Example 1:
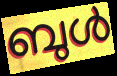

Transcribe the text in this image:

ബുൾ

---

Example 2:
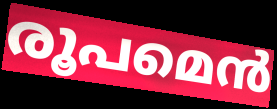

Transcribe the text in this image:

രൂപമെൻ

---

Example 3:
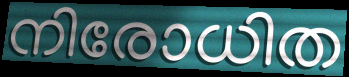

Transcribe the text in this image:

നിരോധിത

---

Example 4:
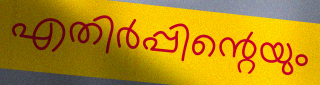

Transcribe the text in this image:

എതിർപ്പിന്റെയും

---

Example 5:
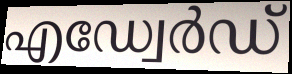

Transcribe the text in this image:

എഡ്വേർഡ്